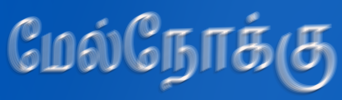
மேல்நோக்கு